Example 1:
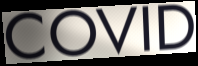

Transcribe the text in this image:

COVID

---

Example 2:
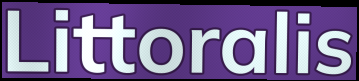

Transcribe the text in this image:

Littoralis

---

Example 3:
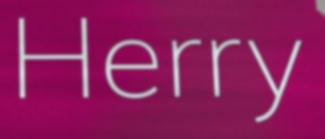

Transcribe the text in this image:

Herry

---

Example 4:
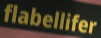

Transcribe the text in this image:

flabellifer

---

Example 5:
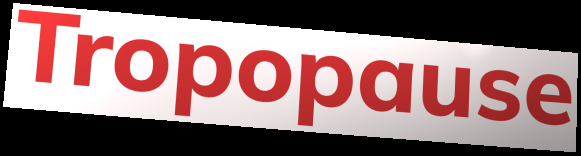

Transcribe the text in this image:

Tropopause